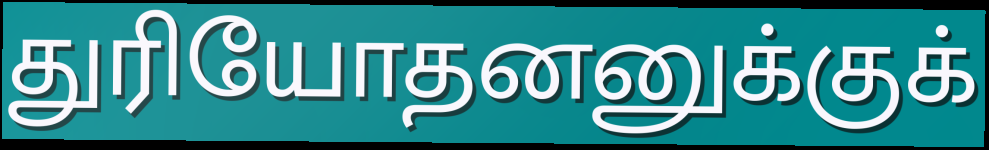
துரியோதனனுக்குக்